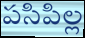
పసిపిల్ల